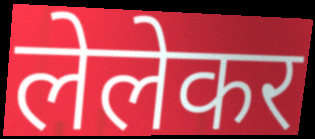
लेलेकर